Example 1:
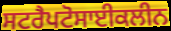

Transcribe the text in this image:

ਸਟਰੈਪਟੋਸਾਈਕਲੀਨ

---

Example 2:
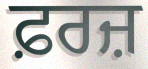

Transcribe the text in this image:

ਫ਼ਰਜ਼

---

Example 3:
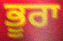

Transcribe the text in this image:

ਭੂਰਾ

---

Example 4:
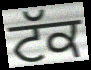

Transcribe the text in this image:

ਟੱਕ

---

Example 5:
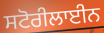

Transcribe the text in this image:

ਸਟੋਰੀਲਾਈਨ